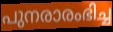
പുനരാരംഭിച്ച